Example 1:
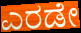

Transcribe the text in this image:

ಎರಡೇ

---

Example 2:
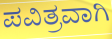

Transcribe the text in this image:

ಪವಿತ್ರವಾಗಿ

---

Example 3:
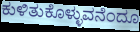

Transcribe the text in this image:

ಕುಳಿತುಕೊಳ್ಳುವನೆಂದೂ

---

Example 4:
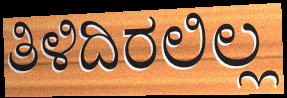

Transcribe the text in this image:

ತಿಳಿದಿರಲಿಲ್ಲ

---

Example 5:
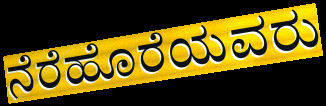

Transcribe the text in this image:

ನೆರೆಹೊರೆಯವರು